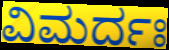
ವಿಮರ್ದಃ